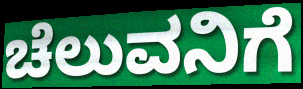
ಚೆಲುವನಿಗೆ